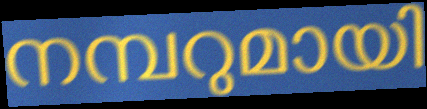
നമ്പറുമായി